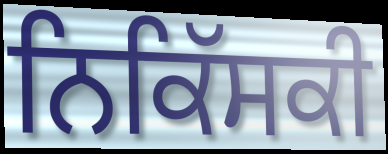
ਨਿਕਿੱਸਕੀ